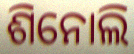
ଶିନୋଲି